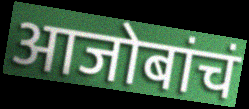
आजोबांचं